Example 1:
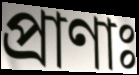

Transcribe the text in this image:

প্রাণাঃ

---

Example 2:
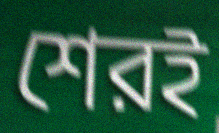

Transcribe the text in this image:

শেরই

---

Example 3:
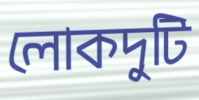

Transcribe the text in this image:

লোকদুটি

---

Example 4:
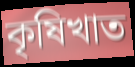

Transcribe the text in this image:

কৃষিখাত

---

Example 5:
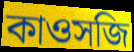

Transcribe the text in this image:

কাওসজি